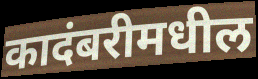
कादंबरीमधील